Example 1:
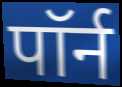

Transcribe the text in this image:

पॉर्न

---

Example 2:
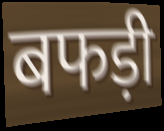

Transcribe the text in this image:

बफड़ी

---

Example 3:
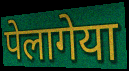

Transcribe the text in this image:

पेलागेया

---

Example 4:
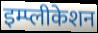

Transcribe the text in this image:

इम्प्लीकेशन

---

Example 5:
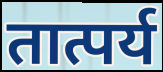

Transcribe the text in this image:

तात्पर्य